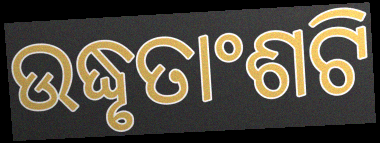
ଉଦ୍ଧୃତାଂଶଟି